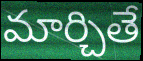
మార్చితే